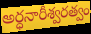
అర్ధనారీశ్వరత్వం